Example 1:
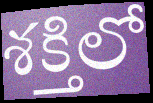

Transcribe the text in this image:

శక్తిలో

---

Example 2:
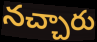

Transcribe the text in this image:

నచ్చారు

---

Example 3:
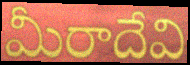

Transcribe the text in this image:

మీరాదేవి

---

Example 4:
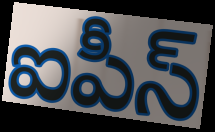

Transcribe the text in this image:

ఐపీస్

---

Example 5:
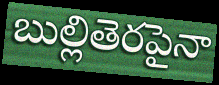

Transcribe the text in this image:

బుల్లితెరపైనా